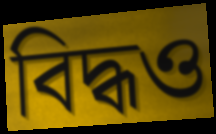
বিদ্ধও